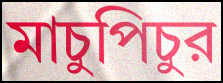
মাচুপিচুর